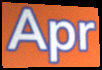
Apr